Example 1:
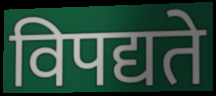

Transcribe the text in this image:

विपद्यते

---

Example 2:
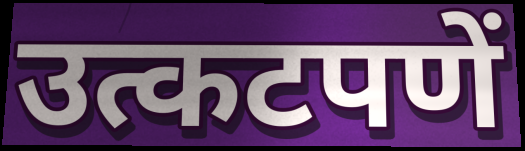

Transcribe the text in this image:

उत्कटपणें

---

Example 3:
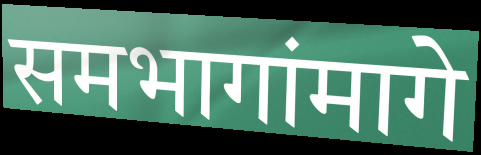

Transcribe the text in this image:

समभागांमागे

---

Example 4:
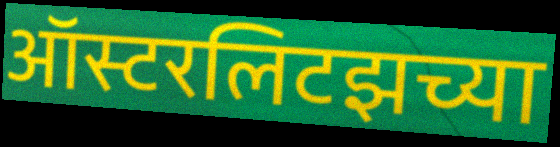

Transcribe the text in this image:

ऑस्टरलिटझच्या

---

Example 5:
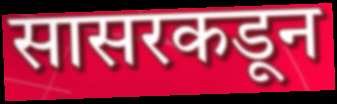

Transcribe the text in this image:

सासरकडून